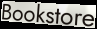
Bookstore